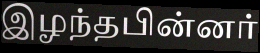
இழந்தபின்னர்